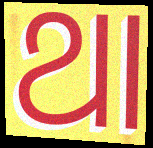
ଥା